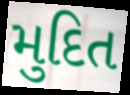
મુદિત